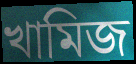
খামিজ